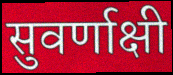
सुवर्णाक्षी